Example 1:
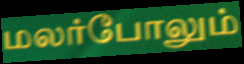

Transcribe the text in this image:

மலர்போலும்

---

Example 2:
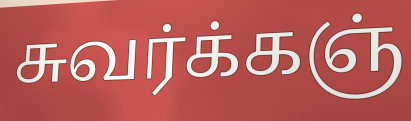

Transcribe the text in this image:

சுவர்க்கஞ்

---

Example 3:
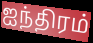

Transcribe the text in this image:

ஐந்திரம்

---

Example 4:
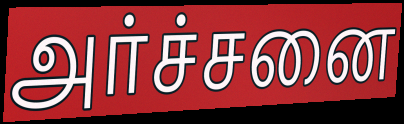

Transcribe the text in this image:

அர்ச்சனை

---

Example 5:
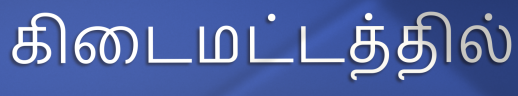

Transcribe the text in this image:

கிடைமட்டத்தில்